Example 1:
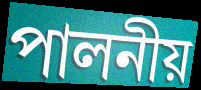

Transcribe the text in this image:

পালনীয়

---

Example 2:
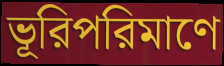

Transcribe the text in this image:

ভূরিপরিমাণে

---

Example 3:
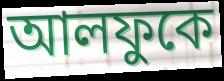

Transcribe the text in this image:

আলফুকে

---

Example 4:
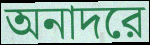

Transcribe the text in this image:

অনাদরে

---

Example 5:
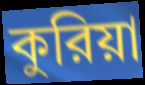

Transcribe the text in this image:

কুরিয়া